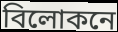
বিলোকনে